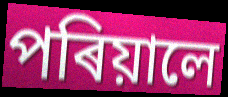
পৰিয়ালে